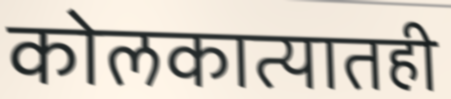
कोलकात्यातही